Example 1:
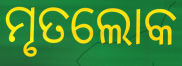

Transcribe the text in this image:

ମୃତଲୋକ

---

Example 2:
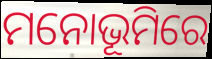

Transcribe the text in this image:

ମନୋଭୂମିରେ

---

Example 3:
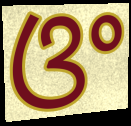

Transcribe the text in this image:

ଓଂ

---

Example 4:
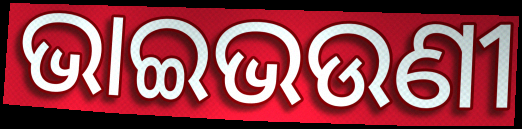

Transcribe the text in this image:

ଭାଇଭଉଣୀ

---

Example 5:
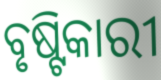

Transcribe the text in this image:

ବୃଷ୍ଟିକାରୀ